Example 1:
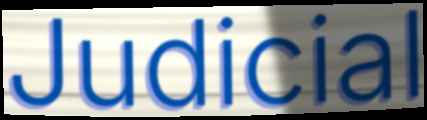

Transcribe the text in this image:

Judicial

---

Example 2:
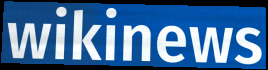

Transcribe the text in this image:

wikinews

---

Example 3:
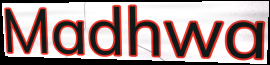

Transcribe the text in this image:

Madhwa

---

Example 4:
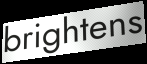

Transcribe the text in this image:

brightens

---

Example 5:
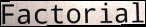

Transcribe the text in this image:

Factorial